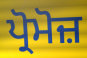
ਪ੍ਰੋਮੋਜ਼